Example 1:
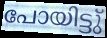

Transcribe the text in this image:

പോയിട്ടു്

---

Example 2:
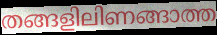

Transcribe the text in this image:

തങ്ങളിലിണങ്ങാത്ത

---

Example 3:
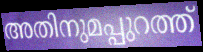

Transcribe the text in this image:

അതിനുമപ്പുറത്ത്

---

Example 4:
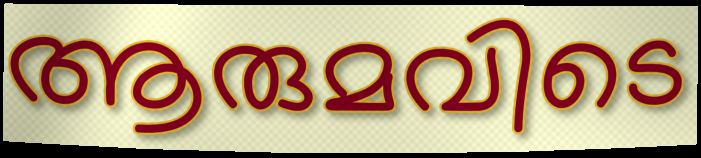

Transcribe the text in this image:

ആരുമവിടെ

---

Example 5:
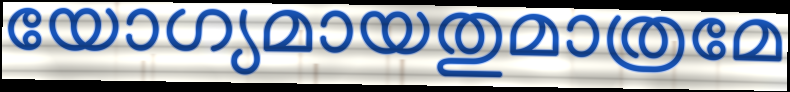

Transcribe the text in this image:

യോഗ്യമായതുമാത്രമേ